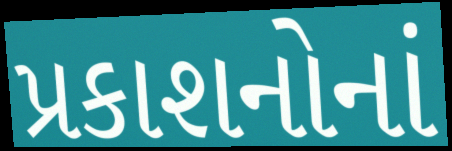
પ્રકાશનોનાં